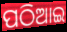
ପଠିଆଇ